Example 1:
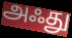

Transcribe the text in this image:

அஃது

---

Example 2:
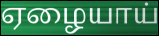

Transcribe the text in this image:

ஏழையாய்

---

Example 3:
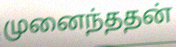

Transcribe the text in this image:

முனைந்ததன்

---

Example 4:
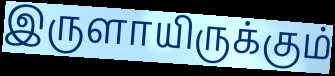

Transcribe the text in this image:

இருளாயிருக்கும்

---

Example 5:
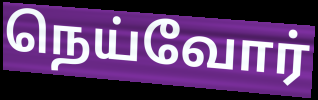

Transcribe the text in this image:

நெய்வோர்